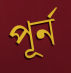
পূর্ন